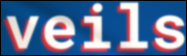
veils